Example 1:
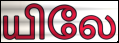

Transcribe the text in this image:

யிலே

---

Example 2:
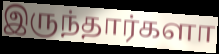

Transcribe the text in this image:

இருந்தார்களா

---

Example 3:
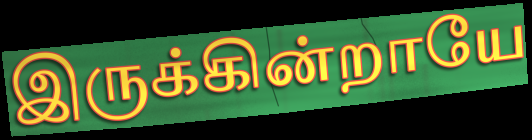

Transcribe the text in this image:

இருக்கின்றாயே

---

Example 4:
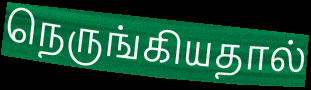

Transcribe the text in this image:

நெருங்கியதால்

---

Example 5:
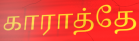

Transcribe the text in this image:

காராத்தே